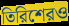
তিরিশেরও